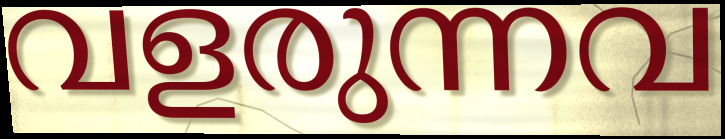
വളരുന്നവ